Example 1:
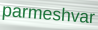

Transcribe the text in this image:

parmeshvar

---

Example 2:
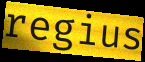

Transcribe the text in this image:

regius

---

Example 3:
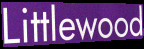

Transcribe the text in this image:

Littlewood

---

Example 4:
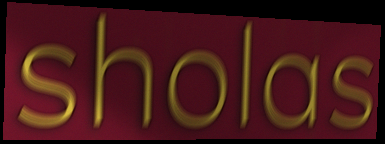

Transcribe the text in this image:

sholas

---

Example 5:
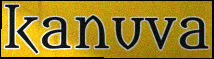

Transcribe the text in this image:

kanuva